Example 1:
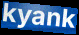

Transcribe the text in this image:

kyank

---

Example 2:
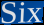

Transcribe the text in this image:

Six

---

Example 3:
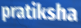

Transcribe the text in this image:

pratiksha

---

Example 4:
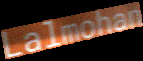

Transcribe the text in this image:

Lalmohan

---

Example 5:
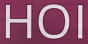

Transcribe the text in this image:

HOI